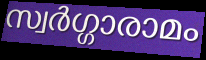
സ്വർഗ്ഗാരാമം